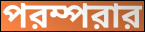
পরম্পরার